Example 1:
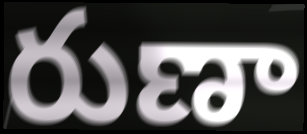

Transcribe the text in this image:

రుణా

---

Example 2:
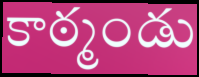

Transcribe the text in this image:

కాఠ్మండు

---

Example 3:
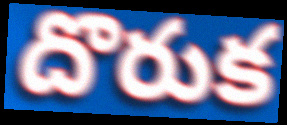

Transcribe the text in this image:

దొరుక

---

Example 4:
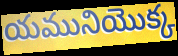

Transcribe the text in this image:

యమునియొక్క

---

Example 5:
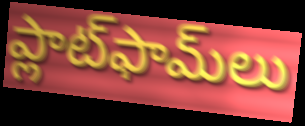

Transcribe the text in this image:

ప్లాట్‌ఫామ్‌లు